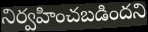
నిర్వహించబడిందని